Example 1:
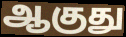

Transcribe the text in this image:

ஆகுது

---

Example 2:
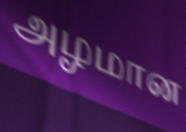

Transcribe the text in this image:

அழமான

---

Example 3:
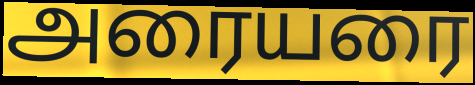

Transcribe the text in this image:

அரையரை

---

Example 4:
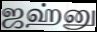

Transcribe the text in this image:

ஜஹ்னு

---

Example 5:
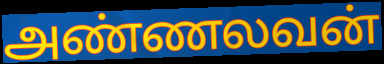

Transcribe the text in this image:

அண்ணலவன்